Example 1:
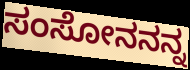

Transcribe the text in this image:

ಸಂಸೋನನನ್ನ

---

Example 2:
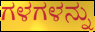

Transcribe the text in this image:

ಗಳಗಳನ್ನು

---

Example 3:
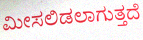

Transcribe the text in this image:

ಮೀಸಲಿಡಲಾಗುತ್ತದೆ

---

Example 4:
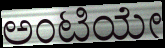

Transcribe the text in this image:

ಅಂಟಿಯೇ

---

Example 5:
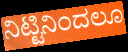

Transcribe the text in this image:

ನಿಟ್ಟಿನಿಂದಲೂ